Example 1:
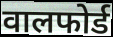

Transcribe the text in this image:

वालफोर्ड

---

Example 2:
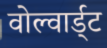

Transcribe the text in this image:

वोल्वार्ड्ट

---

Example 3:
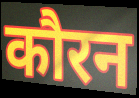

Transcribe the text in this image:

कौरन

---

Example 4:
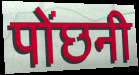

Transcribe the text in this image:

पोंछनी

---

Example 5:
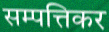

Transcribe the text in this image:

सम्पत्तिकर